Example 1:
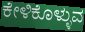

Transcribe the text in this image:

ಕೇಳಿಕೊಳ್ಳುವ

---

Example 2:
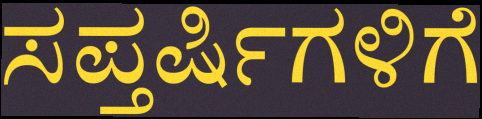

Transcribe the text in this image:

ಸಪ್ತರ್ಷಿಗಳಿಗೆ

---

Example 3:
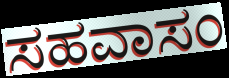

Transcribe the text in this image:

ಸಹವಾಸಂ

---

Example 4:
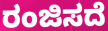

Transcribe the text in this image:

ರಂಜಿಸದೆ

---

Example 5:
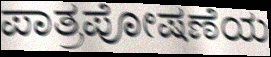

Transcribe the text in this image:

ಪಾತ್ರಪೋಷಣೆಯ